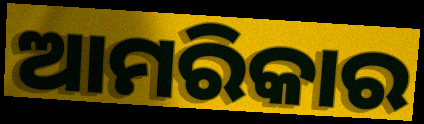
ଆମରିକାର